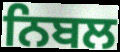
ਨਿਬਲ